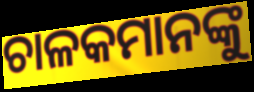
ଚାଳକମାନଙ୍କୁ